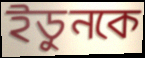
ইডুনকে